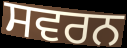
ਸਵਰਨ